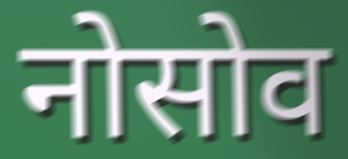
नोसोव